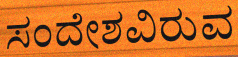
ಸಂದೇಶವಿರುವ